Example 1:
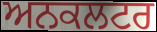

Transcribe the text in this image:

ਅਨਕਲਟਰ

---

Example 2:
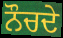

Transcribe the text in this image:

ਨੌਚਦੇ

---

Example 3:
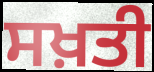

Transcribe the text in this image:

ਸਖ਼ਤੀ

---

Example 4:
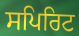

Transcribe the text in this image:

ਸਪਿਰਿਟ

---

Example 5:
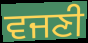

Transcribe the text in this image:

ਵਜਣੀ